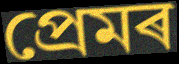
প্ৰেমৰ